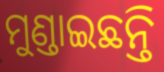
ମୁଣ୍ଡାଇଛନ୍ତି